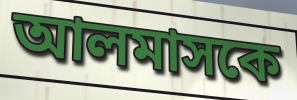
আলমাসকে